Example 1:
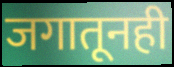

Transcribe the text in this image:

जगातूनही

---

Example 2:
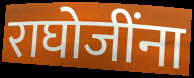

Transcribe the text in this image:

राघोजींना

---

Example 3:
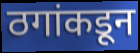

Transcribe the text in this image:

ठगांकडून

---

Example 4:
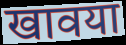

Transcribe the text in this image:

खावया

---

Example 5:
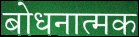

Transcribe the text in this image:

बोधनात्मक